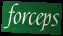
forceps